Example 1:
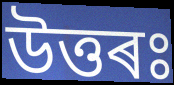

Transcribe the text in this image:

উত্তৰঃ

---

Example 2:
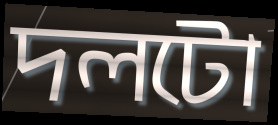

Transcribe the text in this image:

দলটো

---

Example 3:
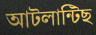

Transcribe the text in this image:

আটলান্টিছ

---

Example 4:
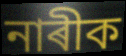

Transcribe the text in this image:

নাৰীক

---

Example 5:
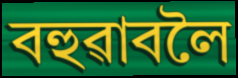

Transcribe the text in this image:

বহুৱাবলৈ